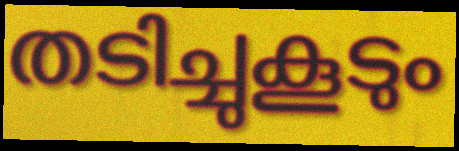
തടിച്ചുകൂടും